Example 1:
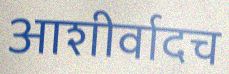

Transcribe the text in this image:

आशीर्वादच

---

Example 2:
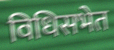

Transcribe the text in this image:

विधिसभेत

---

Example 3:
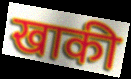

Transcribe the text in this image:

खाकी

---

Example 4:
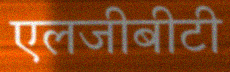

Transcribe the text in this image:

एलजीबीटी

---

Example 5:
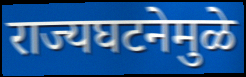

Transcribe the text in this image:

राज्यघटनेमुळे